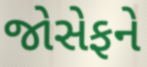
જોસેફને